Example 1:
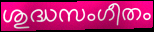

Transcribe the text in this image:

ശുദ്ധസംഗീതം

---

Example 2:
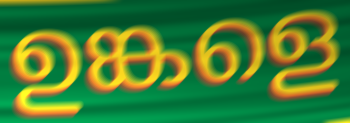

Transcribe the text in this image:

ഉങ്കളെ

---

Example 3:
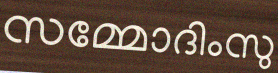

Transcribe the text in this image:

സമ്മോദിംസു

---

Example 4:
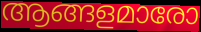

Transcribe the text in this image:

ആങ്ങളമാരോ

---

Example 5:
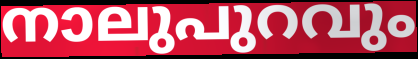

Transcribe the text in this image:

നാലുപുറവും